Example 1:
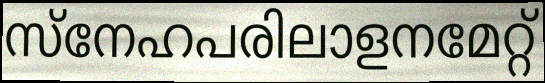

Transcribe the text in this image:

സ്നേഹപരിലാളനമേറ്റ്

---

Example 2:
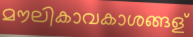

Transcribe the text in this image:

മൗലികാവകാശങ്ങള്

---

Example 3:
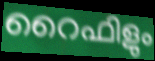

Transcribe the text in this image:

റൈഫിളും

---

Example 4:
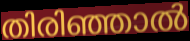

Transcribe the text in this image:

തിരിഞ്ഞാൽ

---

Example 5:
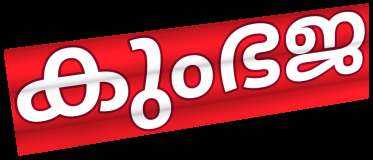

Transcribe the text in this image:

കുംഭജ